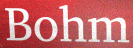
Bohm